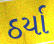
ઠર્યા